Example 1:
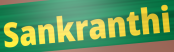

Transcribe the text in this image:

Sankranthi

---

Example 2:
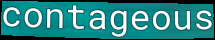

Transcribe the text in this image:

contageous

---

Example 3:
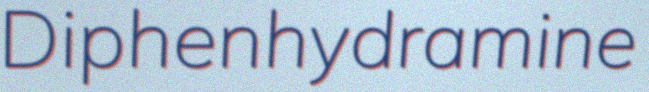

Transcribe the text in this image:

Diphenhydramine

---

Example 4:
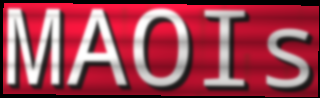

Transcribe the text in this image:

MAOIs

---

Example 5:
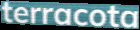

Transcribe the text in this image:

terracota